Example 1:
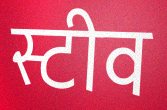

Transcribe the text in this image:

स्‍टीव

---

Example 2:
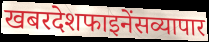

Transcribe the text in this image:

खबरदेशफाइनेंसव्यापार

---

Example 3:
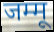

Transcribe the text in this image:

जम्मू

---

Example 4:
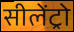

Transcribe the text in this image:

सीलेंट्रो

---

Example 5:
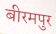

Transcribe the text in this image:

बीरमपुर